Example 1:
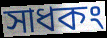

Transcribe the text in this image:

সাধকং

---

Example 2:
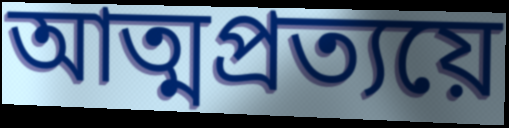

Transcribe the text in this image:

আত্মপ্রত্যয়ে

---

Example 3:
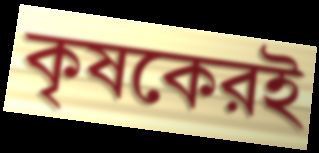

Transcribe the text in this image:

কৃষকেরই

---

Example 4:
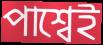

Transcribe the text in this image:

পাশ্বেই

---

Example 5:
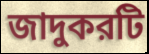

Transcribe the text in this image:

জাদুকরটি